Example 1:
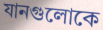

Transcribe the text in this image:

যানগুলোকে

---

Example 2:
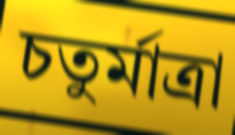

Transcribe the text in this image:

চতুর্মাত্রা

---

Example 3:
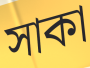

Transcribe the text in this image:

সাকা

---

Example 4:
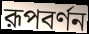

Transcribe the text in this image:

রূপবর্ণন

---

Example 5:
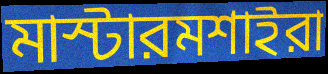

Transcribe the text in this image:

মাস্টারমশাইরা